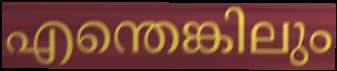
എന്തെങ്കിലും